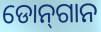
ଡୋନ୍‌ଗାନ